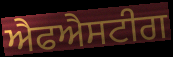
ਐਫਐਸਟੀਗ